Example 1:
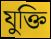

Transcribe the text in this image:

যুক্তি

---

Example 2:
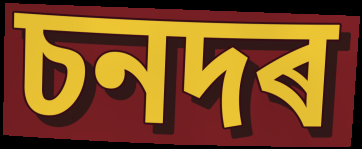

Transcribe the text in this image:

চনদৰ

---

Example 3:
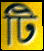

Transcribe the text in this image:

টি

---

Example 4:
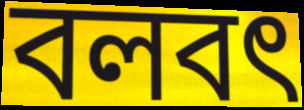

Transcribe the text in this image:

বলবৎ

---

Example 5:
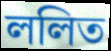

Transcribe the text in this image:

ললিত